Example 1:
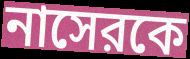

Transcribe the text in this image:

নাসেরকে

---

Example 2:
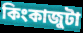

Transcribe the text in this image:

কিংকাজুটা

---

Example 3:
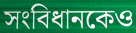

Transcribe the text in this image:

সংবিধানকেও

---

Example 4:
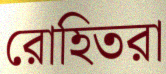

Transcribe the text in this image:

রোহিতরা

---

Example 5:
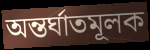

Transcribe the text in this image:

অন্তর্ঘাতমূলক